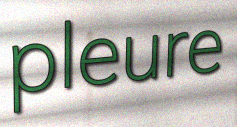
pleure